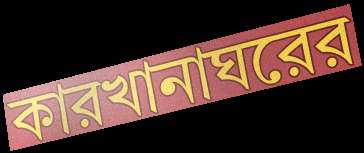
কারখানাঘরের